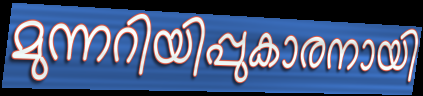
മുന്നറിയിപ്പുകാരനായി